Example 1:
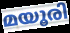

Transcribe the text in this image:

മയൂരി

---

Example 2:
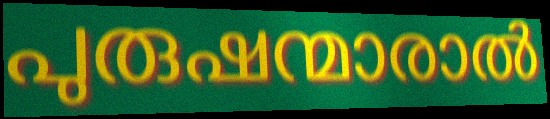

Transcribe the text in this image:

പുരുഷന്മാരാൽ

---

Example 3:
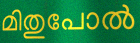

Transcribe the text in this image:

മിതുപോൽ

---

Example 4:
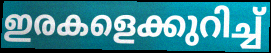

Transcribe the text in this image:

ഇരകളെക്കുറിച്ച്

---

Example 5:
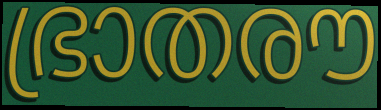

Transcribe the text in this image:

ഭ്രാതരൗ